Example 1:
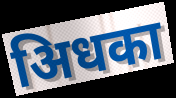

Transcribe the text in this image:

अिधका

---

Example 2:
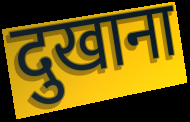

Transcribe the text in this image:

दुखाना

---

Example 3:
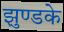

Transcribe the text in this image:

झुण्डके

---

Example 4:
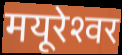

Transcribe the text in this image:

मयूरेश्वर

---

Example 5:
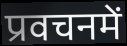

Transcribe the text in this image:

प्रवचनमें